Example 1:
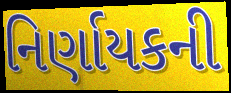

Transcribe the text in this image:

નિર્ણાયકની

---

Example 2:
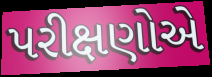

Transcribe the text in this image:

પરીક્ષણોએ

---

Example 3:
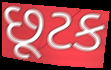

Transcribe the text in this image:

છૂટક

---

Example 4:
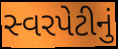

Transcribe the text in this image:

સ્વરપેટીનું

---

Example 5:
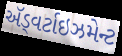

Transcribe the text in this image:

ઍડ્વર્ટાઇઝમેન્ટ